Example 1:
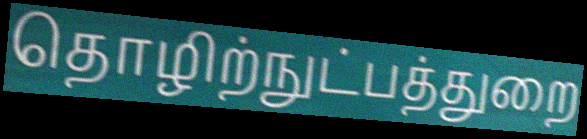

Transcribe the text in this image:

தொழிற்நுட்பத்துறை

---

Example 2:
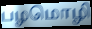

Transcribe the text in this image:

பழமொழி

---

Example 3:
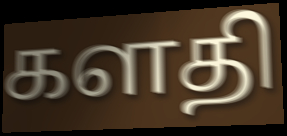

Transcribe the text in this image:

களதி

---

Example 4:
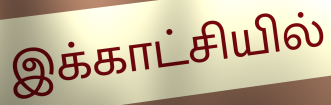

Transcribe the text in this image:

இக்காட்சியில்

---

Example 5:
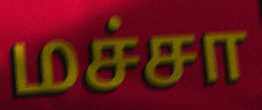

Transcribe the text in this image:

மச்சா